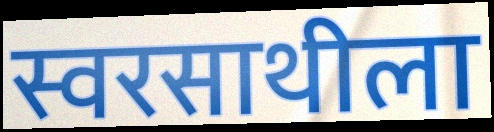
स्वरसाथीला